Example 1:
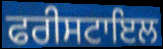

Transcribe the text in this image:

ਫਰੀਸਟਾਇਲ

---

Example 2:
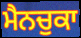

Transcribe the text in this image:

ਮੈਨਚੁਕਾ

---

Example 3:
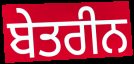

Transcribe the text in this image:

ਬੇਤਰੀਨ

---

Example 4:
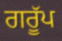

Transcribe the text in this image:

ਗਰੂੱਪ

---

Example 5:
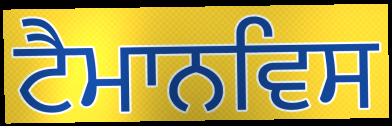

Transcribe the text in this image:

ਟੈਮਾਨਵਿਸ